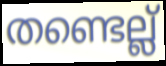
തണ്ടെല്ല്